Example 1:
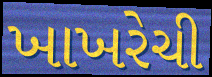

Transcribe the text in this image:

ખાખરેચી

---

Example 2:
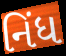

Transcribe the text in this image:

નિંધ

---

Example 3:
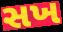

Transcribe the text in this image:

સખ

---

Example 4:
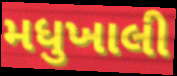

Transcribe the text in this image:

મધુખાલી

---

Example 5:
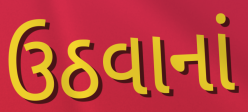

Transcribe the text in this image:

ઉઠવાનાં